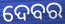
ଦେବର